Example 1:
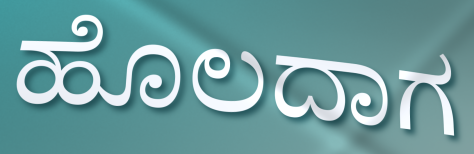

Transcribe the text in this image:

ಹೊಲದಾಗ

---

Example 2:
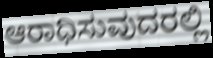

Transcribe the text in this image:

ಆರಾಧಿಸುವುದರಲ್ಲಿ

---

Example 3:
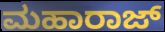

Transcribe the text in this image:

ಮಹಾರಾಜ್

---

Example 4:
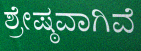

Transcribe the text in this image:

ಶ್ರೇಷ್ಠವಾಗಿವೆ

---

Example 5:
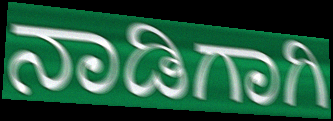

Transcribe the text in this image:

ನಾಡಿಗಾಗಿ